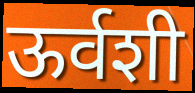
ऊर्वशी